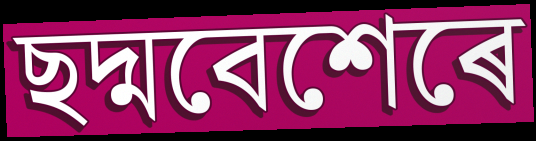
ছদ্মবেশেৰে